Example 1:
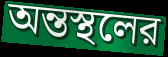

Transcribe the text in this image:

অন্তস্থলের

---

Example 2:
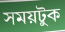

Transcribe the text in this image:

সময়টুক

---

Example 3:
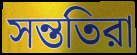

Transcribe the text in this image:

সন্ততিরা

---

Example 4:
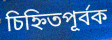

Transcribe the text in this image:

চিহ্নিতপূর্বক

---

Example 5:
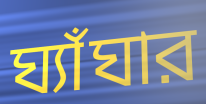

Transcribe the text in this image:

ঘ্যাঁঘার